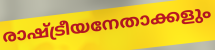
രാഷ്ട്രീയനേതാക്കളും